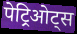
पेट्रिओट्स